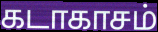
கடாகாசம்